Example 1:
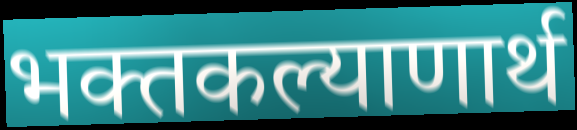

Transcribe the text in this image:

भक्तकल्याणार्थ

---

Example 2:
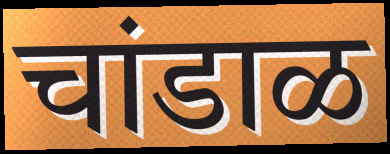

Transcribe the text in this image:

चांडाळ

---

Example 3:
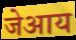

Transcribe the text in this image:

जेआय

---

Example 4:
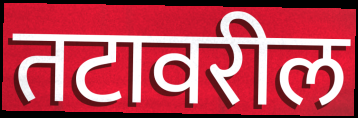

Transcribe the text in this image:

तटावरील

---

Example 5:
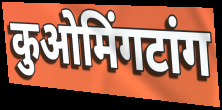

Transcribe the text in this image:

कुओमिंगटांग